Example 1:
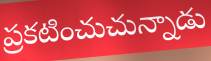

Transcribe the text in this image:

ప్రకటించుచున్నాడు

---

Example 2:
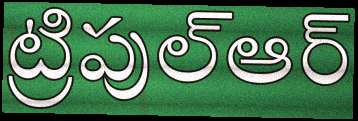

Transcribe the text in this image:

ట్రిపుల్ఆర్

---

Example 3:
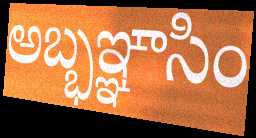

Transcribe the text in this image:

అబ్భఞ్ఞాసిం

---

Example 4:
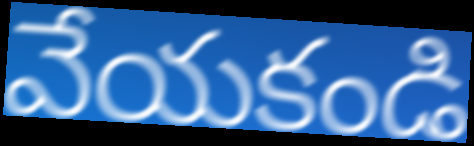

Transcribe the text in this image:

వేయకండి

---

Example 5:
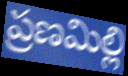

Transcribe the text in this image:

ప్రణమిల్లి